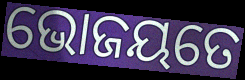
ଭୋଜୟତେ